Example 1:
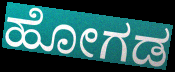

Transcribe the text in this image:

ಹೋಗಡ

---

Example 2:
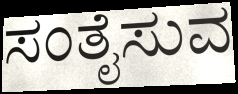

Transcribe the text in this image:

ಸಂತೈಸುವ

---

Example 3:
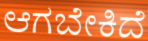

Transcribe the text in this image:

ಆಗಬೇಕಿದೆ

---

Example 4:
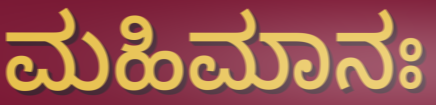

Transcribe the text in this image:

ಮಹಿಮಾನಃ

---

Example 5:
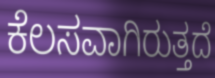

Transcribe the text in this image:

ಕೆಲಸವಾಗಿರುತ್ತದೆ